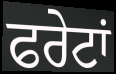
ਫਰੇਟਾਂ